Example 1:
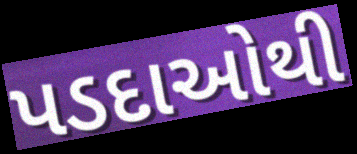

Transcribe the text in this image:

પડદાઓથી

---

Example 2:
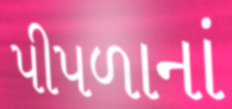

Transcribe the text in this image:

પીપળાનાં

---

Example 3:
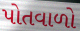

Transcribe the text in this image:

પોતવાળો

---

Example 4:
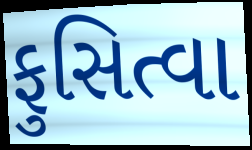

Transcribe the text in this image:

ફુસિત્વા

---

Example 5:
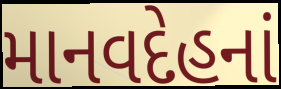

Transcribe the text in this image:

માનવદેહનાં